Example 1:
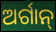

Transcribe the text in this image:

ଅର୍ଗାନ୍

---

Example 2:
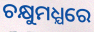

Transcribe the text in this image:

ଚକ୍ଷୁମଧ୍ଯରେ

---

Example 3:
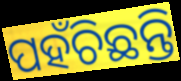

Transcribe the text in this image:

ପହଁଚିଛନ୍ତି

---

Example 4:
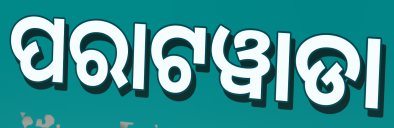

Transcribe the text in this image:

ପରାଟୱାଡା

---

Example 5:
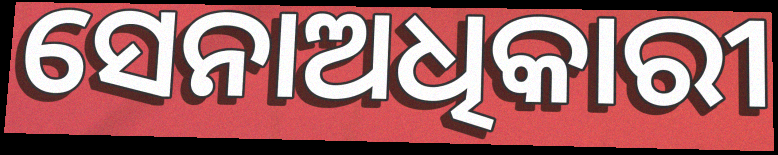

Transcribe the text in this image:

ସେନାଅଧିକାରୀ